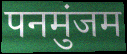
पनमुंजम